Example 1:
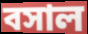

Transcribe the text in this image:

বসাল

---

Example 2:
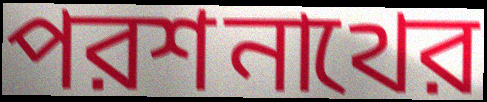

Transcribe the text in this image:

পরশনাথের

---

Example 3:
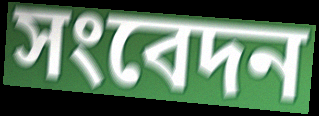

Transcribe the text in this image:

সংবেদন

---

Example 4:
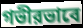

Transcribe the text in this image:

গভীরভাবে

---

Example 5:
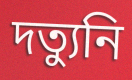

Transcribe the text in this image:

দত্যুনি